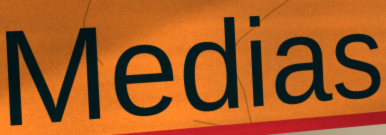
Medias